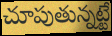
చూపుతున్నట్టే